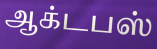
ஆக்டபஸ்